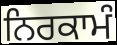
ਨਿਰਕਾਮੰ